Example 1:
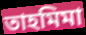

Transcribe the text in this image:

তাহমিমা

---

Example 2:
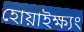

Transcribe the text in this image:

হোয়াইক্ষ্যং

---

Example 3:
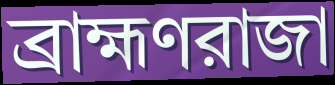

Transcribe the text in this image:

ব্রাহ্মণরাজা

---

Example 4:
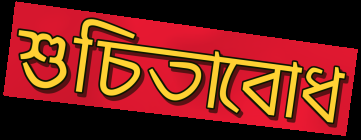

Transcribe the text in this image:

শুচিতাবোধ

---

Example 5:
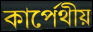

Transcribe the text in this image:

কার্পেথীয়